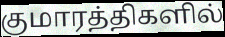
குமாரத்திகளில்